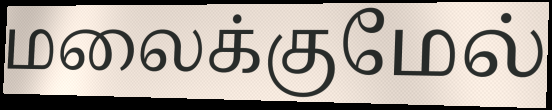
மலைக்குமேல்